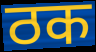
ठक